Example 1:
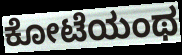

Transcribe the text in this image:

ಕೋಟೆಯಂಥ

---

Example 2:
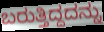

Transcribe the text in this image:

ಬರುತ್ತಿದ್ದದನ್ನು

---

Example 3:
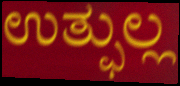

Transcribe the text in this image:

ಉತ್ಫುಲ್ಲ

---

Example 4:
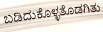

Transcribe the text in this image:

ಬಡಿದುಕೊಳ್ಳತೊಡಗಿತು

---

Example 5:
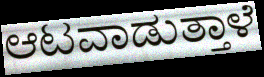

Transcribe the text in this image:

ಆಟವಾಡುತ್ತಾಳೆ